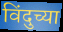
विंदुच्या